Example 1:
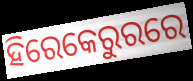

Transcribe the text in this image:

ହିରେକେରୁରରେ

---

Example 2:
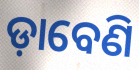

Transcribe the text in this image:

ଡ଼ାବେଣି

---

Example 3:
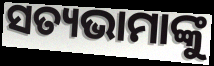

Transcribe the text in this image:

ସତ୍ୟଭାମାଙ୍କୁ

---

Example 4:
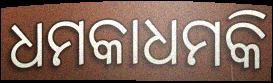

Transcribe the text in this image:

ଧମକାଧମକି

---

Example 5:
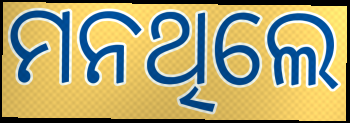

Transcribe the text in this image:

ମନଥିଲେ